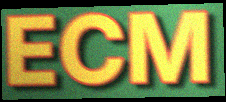
ECM